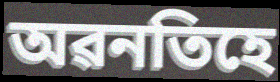
অৱনতিহে